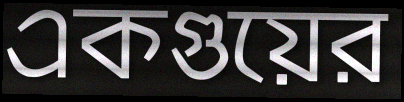
একগুয়ের